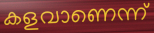
കളവാണെന്ന്